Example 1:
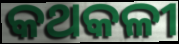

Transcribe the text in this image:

କଥକଳୀ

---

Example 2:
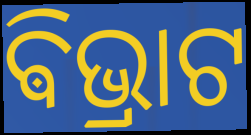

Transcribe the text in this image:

ଵିଭ୍ରାଟ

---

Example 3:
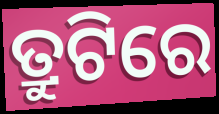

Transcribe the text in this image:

ତ୍ରୁଟିରେ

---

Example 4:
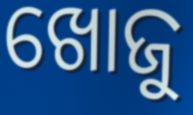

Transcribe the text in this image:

ଖୋଜୁ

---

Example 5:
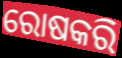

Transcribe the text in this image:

ରୋଷକରି